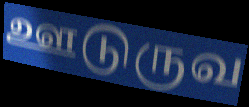
ஊடுருவ